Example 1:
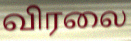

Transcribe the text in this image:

விரலை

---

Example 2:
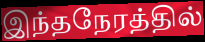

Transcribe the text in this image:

இந்தநேரத்தில்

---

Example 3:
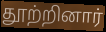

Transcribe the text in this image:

தூற்றினார்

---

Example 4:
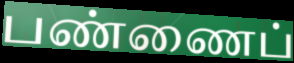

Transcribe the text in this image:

பண்ணைப்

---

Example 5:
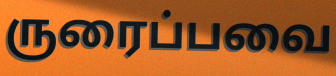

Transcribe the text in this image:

ருரைப்பவை